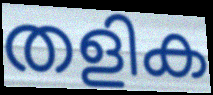
തളിക